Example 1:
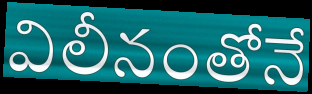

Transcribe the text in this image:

విలీనంతోనే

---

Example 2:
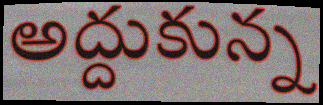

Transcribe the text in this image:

అద్దుకున్న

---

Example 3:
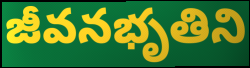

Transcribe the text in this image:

జీవనభృతిని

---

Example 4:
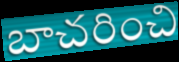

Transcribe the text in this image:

బాచరించి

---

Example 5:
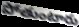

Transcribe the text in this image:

పోతుంటారు